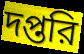
দপ্তরি